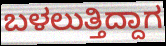
ಬಳಲುತ್ತಿದ್ದಾಗ